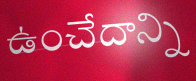
ఉంచేదాన్ని